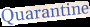
Quarantine